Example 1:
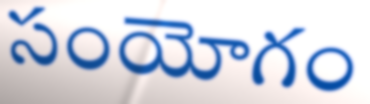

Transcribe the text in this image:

సంయోగం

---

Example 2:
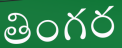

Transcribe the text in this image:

తింగర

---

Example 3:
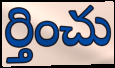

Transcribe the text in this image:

ర్తించు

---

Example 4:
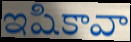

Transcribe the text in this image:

ఇషికావా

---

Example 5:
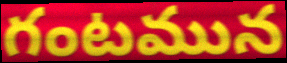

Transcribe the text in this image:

గంటమున